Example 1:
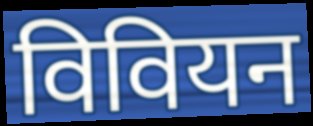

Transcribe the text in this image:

विवियन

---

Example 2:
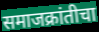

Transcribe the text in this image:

समाजक्रांतीचा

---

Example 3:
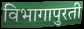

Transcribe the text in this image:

विभागापुरती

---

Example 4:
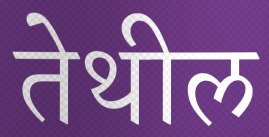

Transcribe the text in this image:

तेथील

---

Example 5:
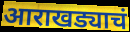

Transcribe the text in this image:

आराखड्याचं